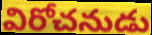
విరోచనుడు